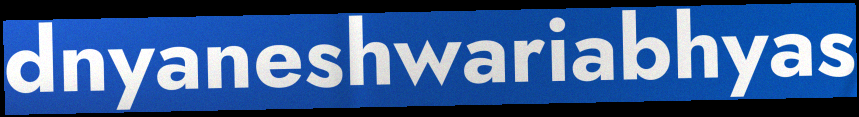
dnyaneshwariabhyas